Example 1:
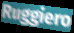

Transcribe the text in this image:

Ruggiero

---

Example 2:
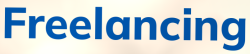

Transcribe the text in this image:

Freelancing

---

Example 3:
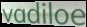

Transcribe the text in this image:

vadiloe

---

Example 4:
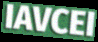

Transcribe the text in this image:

IAVCEI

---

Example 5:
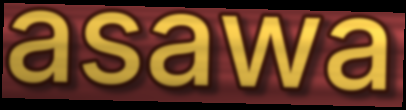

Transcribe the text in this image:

asawa